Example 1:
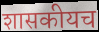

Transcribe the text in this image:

शासकीयच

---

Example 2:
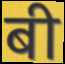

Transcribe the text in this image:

बी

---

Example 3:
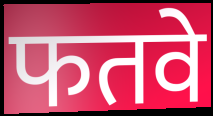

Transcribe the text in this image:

फतवे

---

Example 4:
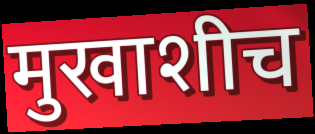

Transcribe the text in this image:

मुखाशीच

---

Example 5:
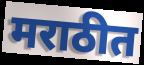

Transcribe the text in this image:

मराठीत